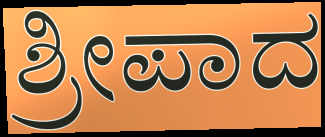
ಶ್ರೀಪಾದ